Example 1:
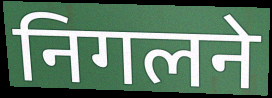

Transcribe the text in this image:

निगलने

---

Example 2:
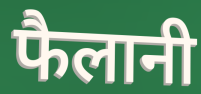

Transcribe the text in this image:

फैलानी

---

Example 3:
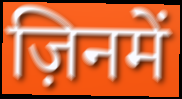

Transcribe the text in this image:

ज़िनमें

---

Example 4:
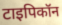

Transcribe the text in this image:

टाइपिकॉन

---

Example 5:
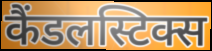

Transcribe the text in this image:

कैंडलस्टिक्स